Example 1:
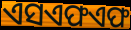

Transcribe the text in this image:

ଏସଏଫଏଫ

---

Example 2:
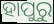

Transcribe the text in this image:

ହାପୁରୁ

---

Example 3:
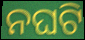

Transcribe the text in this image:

ନଘଟି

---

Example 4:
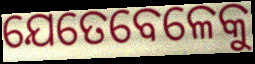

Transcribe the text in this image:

ଯେତେବେଳେକୁ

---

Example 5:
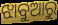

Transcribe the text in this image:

ଝାବୁଆରୁ